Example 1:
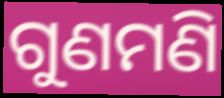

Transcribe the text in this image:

ଗୁଣମଣି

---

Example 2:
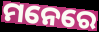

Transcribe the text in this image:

ମନେରେ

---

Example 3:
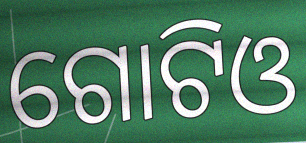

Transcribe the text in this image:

ଗୋଟିଓ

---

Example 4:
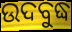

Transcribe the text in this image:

ଉଦବୁଦ୍ଧ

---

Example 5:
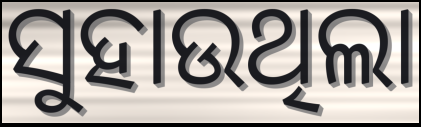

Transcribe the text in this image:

ସୁହାଉଥିଲା